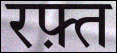
रफ़्त